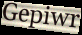
Gepiwr